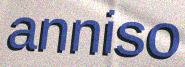
anniso